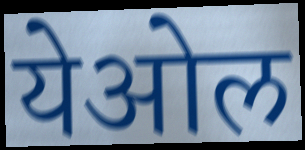
येओल